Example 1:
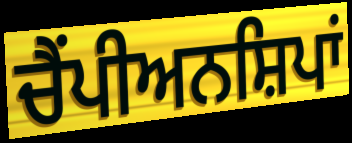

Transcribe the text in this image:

ਚੈਂਪੀਅਨਸ਼ਿਪਾਂ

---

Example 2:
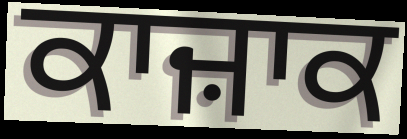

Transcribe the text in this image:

ਕਾਜ਼ਾਕ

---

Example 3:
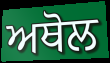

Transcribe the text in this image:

ਅਥੋਲ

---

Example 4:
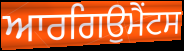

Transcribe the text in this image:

ਆਰਗਿਉਮੈਂਟਸ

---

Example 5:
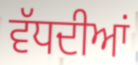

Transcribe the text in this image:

ਵੱਧਦੀਆਂ